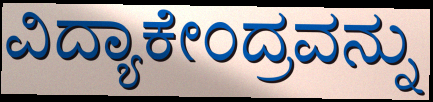
ವಿದ್ಯಾಕೇಂದ್ರವನ್ನು